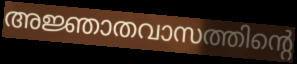
അജ്ഞാതവാസത്തിന്റെ